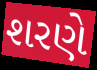
શરણે